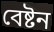
বেষ্টন